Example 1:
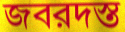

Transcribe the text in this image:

জবরদস্ত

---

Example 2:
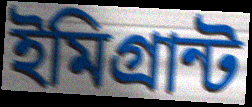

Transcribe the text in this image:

ইমিগ্রান্ট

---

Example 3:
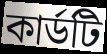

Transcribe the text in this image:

কার্ডটি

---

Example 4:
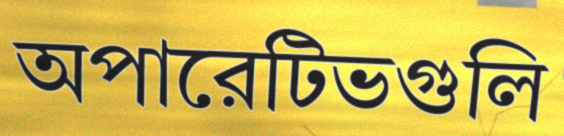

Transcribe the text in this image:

অপারেটিভগুলি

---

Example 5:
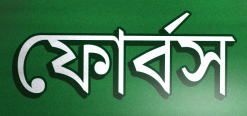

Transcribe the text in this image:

ফোর্বস